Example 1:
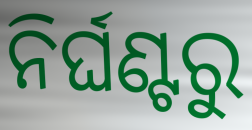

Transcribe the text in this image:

ନିର୍ଘଣ୍ଟରୁ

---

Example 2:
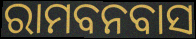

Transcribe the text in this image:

ରାମବନବାସ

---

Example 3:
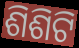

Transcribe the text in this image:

ଶିଶିଟି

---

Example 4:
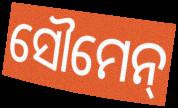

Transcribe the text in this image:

ସୌମେନ୍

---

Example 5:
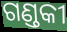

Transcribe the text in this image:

ଗଣ୍ଡକୀ